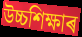
উচ্চশিক্ষাৰ